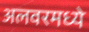
अलवरमध्ये